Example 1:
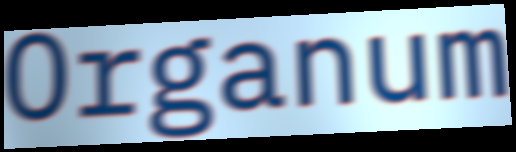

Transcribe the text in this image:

Organum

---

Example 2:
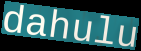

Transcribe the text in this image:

dahulu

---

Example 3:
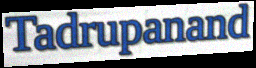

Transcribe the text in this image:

Tadrupanand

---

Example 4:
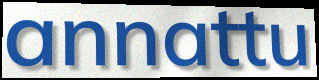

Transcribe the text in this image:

annattu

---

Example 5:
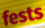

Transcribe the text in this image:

fests